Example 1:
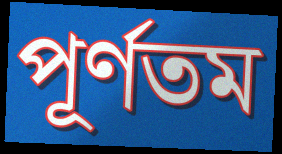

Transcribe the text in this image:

পূর্ণতম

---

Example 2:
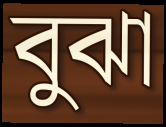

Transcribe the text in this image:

বুঝা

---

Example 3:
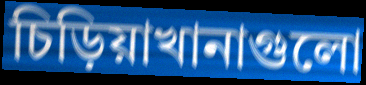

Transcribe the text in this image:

চিড়িয়াখানাগুলো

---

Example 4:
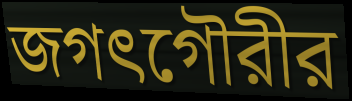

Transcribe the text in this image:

জগৎগৌরীর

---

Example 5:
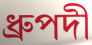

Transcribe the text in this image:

ধ্রুপদী